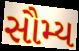
સૌમ્ય